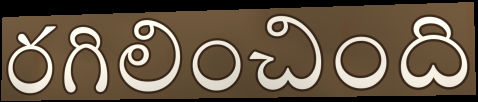
రగిలించింది